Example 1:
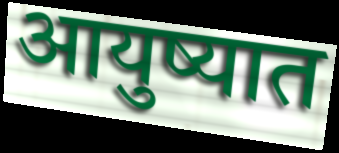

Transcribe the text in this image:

आयुष्यात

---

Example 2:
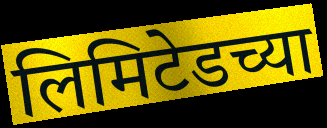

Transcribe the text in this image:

लिमिटेडच्या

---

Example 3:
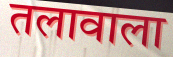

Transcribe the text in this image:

तलावाला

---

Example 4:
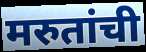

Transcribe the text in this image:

मरुतांची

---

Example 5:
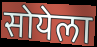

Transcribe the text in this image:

सोयेला